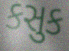
કસુક